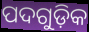
ପଦଗୁଡ଼ିକ